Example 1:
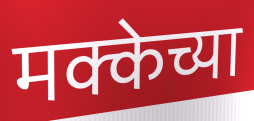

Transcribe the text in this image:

मक्केच्या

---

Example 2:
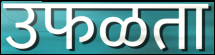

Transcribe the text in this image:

उफळता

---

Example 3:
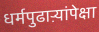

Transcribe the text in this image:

धर्मपुढाऱ्‍यांपेक्षा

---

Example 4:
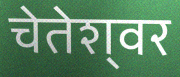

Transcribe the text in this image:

चेतेश्वर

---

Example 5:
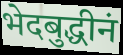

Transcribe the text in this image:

भेदबुद्धीनं